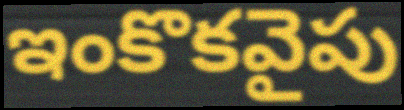
ఇంకొకవైపు